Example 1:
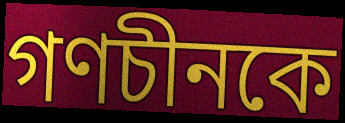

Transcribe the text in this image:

গণচীনকে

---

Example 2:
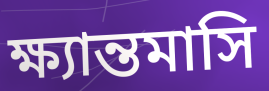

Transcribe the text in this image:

ক্ষ্যান্তমাসি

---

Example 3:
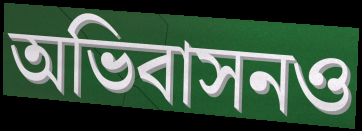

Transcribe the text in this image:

অভিবাসনও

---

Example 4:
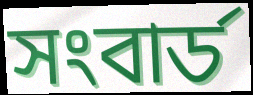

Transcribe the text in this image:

সংবার্ড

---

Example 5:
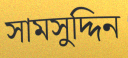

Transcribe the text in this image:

সামসুদ্দিন